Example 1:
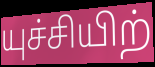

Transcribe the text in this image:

யுச்சியிற்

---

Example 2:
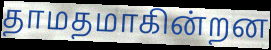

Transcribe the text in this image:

தாமதமாகின்றன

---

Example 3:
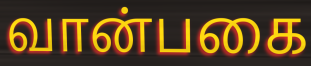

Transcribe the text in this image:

வான்பகை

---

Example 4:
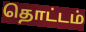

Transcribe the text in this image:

தொட்டம்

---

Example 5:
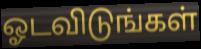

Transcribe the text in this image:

ஓடவிடுங்கள்